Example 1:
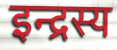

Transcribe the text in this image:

इन्द्रस्य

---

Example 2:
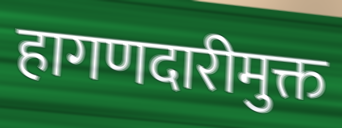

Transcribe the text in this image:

हागणदारीमुक्त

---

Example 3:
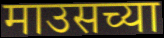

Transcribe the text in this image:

माउसच्या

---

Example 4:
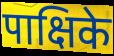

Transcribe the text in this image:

पाक्षिके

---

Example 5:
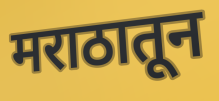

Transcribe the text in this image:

मराठातून